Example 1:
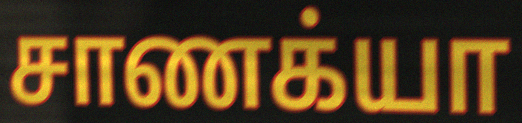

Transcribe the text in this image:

சாணக்யா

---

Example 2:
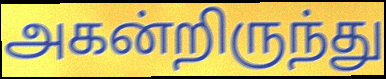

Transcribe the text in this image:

அகன்றிருந்து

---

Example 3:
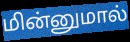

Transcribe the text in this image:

மின்னுமால்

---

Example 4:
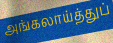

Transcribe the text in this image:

அங்கலாய்த்துப்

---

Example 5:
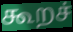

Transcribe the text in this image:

கூறச்